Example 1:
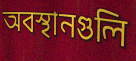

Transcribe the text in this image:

অবস্থানগুলি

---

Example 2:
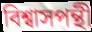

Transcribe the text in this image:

বিশ্বাসপন্থী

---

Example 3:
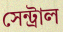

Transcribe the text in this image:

সেন্ট্রাল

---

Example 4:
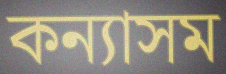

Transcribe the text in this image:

কন্যাসম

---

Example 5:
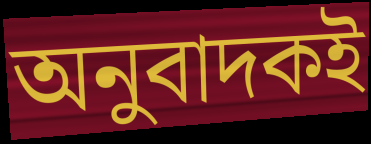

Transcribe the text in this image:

অনুবাদকই